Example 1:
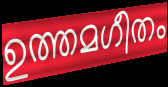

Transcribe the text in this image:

ഉത്തമഗീതം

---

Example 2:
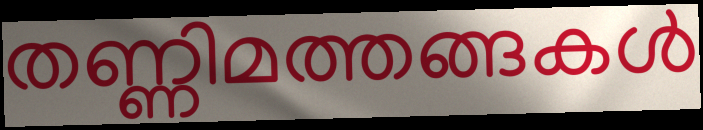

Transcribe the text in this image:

തണ്ണിമത്തങ്ങകൾ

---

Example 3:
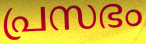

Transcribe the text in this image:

പ്രസഭം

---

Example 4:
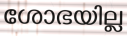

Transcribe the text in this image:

ശോഭയില്ല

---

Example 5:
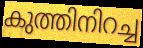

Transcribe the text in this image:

കുത്തിനിറച്ച